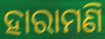
ହାରାମଣି